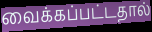
வைக்கப்பட்டதால்